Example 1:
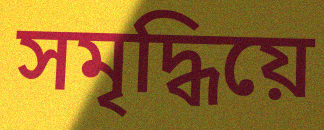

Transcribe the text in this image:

সমৃদ্ধিয়ে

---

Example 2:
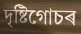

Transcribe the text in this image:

দৃষ্টিগোচৰ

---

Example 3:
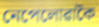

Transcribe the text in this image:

নেপেলোৱাকৈ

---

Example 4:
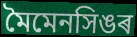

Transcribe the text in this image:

মৈমেনসিঙৰ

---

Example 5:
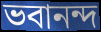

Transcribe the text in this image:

ভবানন্দ